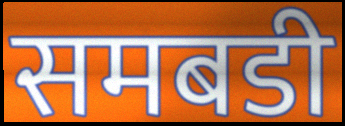
समबडी